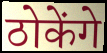
ठोकेंगे